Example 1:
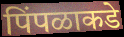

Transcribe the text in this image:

पिंपळाकडे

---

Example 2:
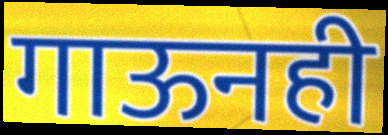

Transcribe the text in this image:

गाऊनही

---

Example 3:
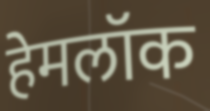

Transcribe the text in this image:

हेमलॉक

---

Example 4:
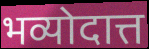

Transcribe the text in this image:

भव्योदात्त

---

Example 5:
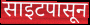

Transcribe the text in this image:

साइटपासून